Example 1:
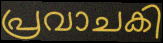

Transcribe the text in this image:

പ്രവാചകി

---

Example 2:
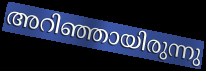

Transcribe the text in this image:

അറിഞ്ഞായിരുന്നു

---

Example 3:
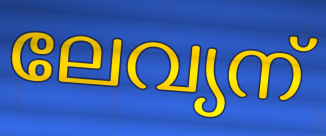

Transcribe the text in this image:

ലേവ്യന്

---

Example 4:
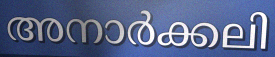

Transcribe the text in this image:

അനാർക്കലി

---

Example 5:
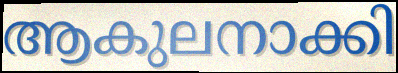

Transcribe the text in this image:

ആകുലനാക്കി